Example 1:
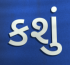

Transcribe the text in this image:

કશું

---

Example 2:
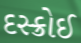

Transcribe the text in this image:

દસ્ક્રોઈ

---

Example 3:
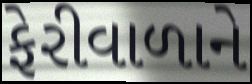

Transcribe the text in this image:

ફેરીવાળાને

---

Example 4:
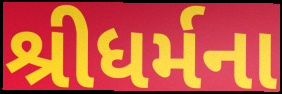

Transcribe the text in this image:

શ્રીધર્મના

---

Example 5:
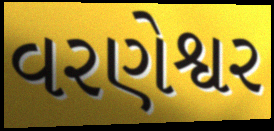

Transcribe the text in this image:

વરણેશ્વર